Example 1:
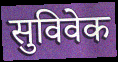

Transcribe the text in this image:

सुविवेक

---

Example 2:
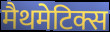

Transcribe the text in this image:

मैथमेटिक्स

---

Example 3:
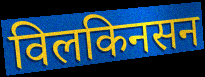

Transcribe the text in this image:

विलकिनसन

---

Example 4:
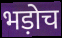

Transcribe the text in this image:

भड़ोच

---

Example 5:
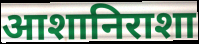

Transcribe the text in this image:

आशानिराशा